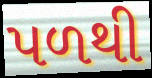
પળથી